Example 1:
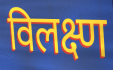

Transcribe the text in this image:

विलक्ष्ण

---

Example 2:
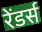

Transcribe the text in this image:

रेंडर्स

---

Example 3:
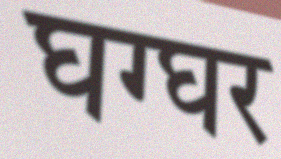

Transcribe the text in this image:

घग्घर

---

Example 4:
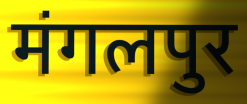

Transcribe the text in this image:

मंगलपुर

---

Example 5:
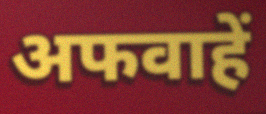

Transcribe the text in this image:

अफवाहें